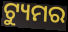
ଟ୍ୟୁମର